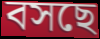
বসছে